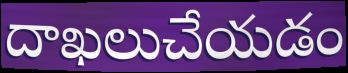
దాఖలుచేయడం